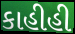
કાહીહી